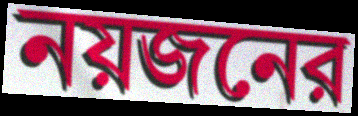
নয়জনের